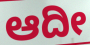
ಆದೀ